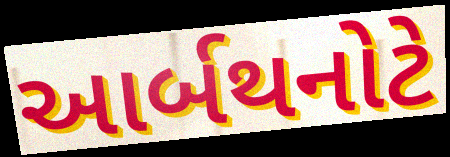
આર્બથનોટે